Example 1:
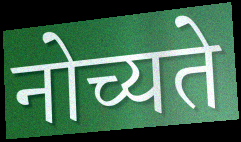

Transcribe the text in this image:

नोच्यते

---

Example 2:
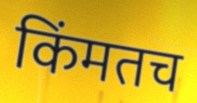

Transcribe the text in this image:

किंमतच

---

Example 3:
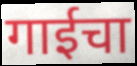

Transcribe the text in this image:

गाईचा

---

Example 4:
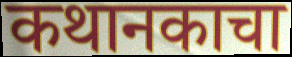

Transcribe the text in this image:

कथानकाचा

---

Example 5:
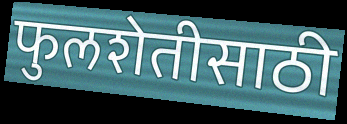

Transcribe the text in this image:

फुलशेतीसाठी